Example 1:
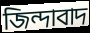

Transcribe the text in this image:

জিন্দাবাদ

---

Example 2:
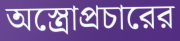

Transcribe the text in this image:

অস্ত্রোপ্রচারের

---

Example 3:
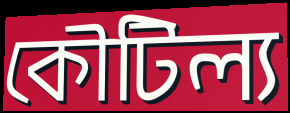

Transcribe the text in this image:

কৌটিল্য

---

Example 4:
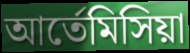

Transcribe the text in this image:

আর্তেমিসিয়া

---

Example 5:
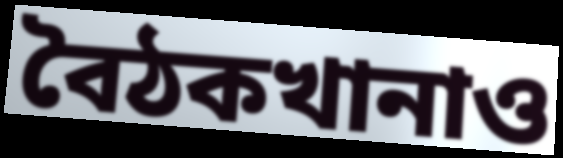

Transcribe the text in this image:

বৈঠকখানাও